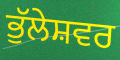
ਭੁੱਲੇਸ਼ਵਰ